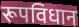
रूपविधान